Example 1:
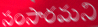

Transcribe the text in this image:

సంసారమని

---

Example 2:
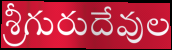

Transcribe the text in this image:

శ్రీగురుదేవుల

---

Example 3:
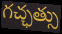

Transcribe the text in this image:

గచ్ఛత్సు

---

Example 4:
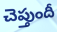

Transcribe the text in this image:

చెప్తుందీ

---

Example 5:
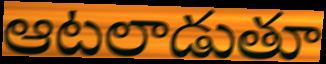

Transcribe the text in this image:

ఆటలాడుతూ